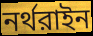
নর্থরাইন